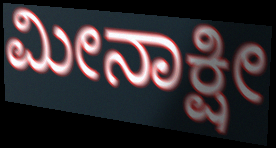
ಮೀನಾಕ್ಷೀ